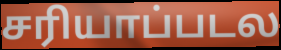
சரியாப்படல